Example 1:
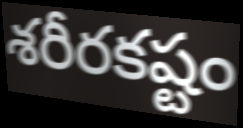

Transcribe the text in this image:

శరీరకష్టం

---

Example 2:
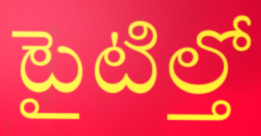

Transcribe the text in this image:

టైటిల్తో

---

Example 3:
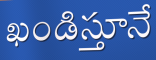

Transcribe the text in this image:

ఖండిస్తూనే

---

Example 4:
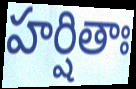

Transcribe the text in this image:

హర్షితాః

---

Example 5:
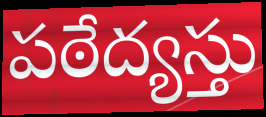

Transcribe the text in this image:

పఠేద్యస్తు